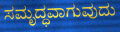
ಸಮೃದ್ಧವಾಗುವುದು